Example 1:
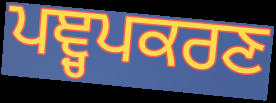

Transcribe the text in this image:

ਪਞ੍ਚਪਕਰਣ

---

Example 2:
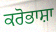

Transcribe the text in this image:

ਕਰੋਭਾਸ਼ਾ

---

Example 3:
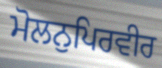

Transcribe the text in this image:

ਮੋਲਨੁਪਿਰਵੀਰ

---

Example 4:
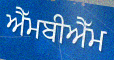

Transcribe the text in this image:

ਐੱਮਬੀਐੱਮ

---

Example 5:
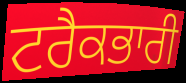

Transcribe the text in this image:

ਟਰੈਕਭਾਰੀ